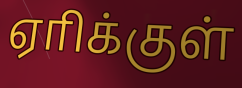
ஏரிக்குள்